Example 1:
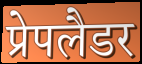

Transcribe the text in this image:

प्रेपलैडर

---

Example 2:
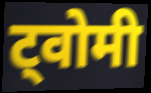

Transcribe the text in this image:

ट्वोमी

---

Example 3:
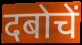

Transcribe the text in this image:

दबोचें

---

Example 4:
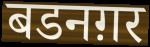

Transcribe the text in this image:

बडनग़र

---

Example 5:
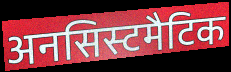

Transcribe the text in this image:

अनसिस्टमैटिक